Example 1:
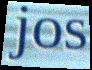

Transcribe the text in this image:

jos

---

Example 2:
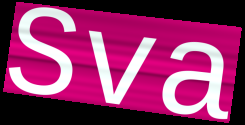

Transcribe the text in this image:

Sva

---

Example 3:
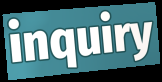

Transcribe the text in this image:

inquiry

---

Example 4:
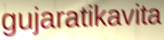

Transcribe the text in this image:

gujaratikavita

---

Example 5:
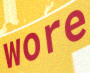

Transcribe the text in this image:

wore